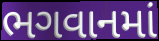
ભગવાનમાં